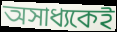
অসাধ্যকেই